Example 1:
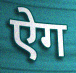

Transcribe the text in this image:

ऐग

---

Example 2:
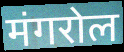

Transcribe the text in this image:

मंगरोल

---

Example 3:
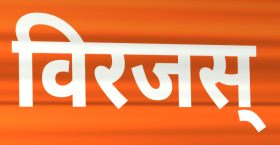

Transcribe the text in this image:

विरजस्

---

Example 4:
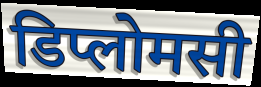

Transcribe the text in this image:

डिप्लोमसी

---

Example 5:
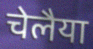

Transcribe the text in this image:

चेलैया